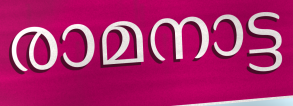
രാമനാട്ട